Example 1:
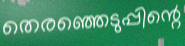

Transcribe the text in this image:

തെരഞ്ഞെടുപ്പിന്റെ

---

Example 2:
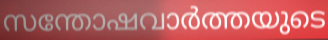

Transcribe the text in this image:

സന്തോഷവാർത്തയുടെ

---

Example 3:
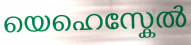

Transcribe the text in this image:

യെഹെസ്കേൽ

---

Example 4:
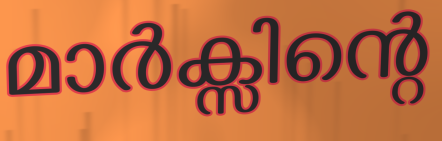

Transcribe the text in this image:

മാർക്സിന്റെ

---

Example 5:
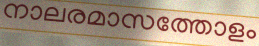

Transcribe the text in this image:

നാലരമാസത്തോളം